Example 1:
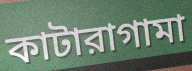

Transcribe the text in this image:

কাটারাগামা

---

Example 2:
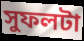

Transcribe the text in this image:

সুফলটা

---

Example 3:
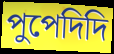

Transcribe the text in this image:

পুপেদিদি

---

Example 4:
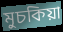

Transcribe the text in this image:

মুচকিয়া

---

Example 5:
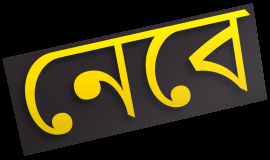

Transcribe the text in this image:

নেবে